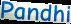
Pandhi